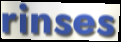
rinses